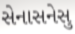
સેનાસનેસુ